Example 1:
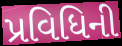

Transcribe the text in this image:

પ્રવિધિની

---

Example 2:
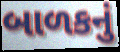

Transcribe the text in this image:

બાળકનું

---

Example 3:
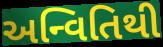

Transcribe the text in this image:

અન્વિતિથી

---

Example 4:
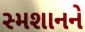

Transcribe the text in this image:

સ્મશાનને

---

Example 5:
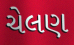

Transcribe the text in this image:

ચેલણ